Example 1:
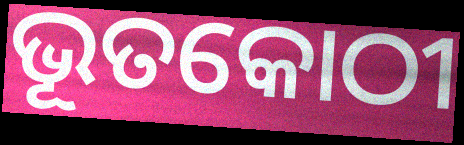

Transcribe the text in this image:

ଭୂତକୋଠୀ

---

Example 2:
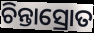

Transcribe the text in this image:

ଚିନ୍ତାସ୍ରୋତ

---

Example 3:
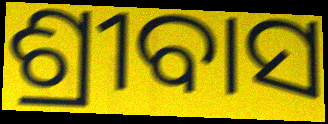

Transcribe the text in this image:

ଶ୍ରୀବାସ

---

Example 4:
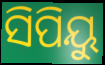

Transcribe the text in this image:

ସିପିୟୁ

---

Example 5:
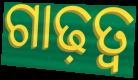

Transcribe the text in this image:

ଗାଢ଼ତ୍ବ